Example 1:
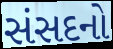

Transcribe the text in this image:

સંસદનો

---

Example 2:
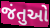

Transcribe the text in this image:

જંતુઓ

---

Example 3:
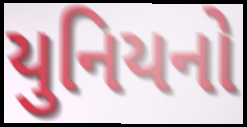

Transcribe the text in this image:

યુનિયનો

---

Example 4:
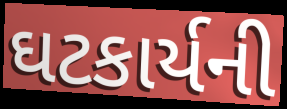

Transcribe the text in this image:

ઘટકાર્યની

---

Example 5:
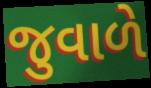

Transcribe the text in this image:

જુવાળે